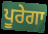
ਪੂਰੇਗਾ